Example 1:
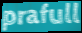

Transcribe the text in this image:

prafull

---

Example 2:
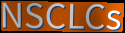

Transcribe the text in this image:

NSCLCs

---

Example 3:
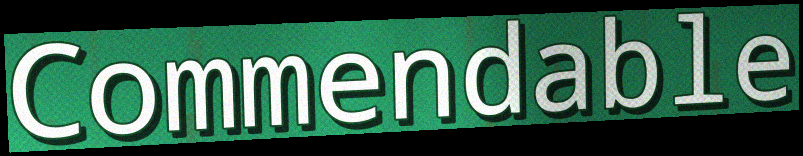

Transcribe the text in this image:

Commendable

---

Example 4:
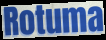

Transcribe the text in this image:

Rotuma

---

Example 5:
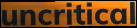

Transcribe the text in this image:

uncritical